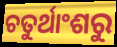
ଚତୁର୍ଥାଂଶରୁ